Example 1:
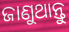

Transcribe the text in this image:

ଜାଣୁଥାନ୍ତୁ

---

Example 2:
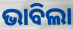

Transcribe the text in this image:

ଭାବିଲା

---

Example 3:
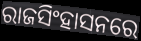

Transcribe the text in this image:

ରାଜସିଂହାସନରେ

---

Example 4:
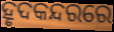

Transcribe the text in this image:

ହୃଦକନ୍ଦରରେ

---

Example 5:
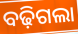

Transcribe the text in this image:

ବଢ଼ିଗଲା